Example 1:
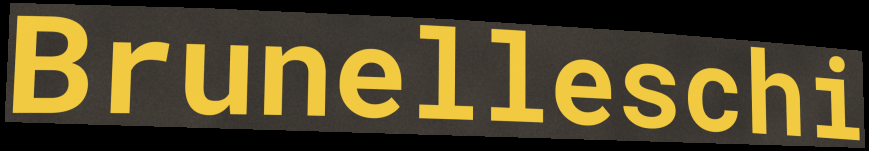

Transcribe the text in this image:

Brunelleschi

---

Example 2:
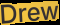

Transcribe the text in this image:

Drew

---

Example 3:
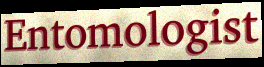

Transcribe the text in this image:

Entomologist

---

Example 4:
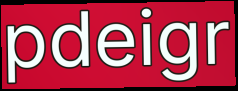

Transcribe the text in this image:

pdeigr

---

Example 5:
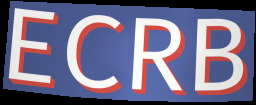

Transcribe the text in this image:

ECRB